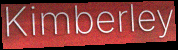
Kimberley